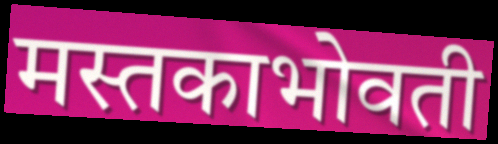
मस्तकाभोवती